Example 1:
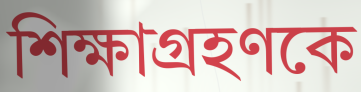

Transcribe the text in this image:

শিক্ষাগ্রহণকে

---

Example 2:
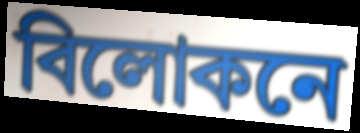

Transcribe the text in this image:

বিলোকনে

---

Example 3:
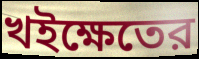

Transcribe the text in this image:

খইক্ষেতের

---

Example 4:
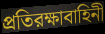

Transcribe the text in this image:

প্রতিরক্ষাবাহিনী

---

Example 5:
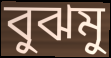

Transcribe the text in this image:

বুঝমু